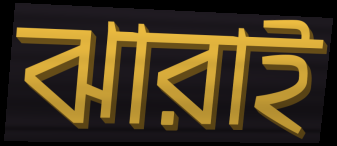
ঝারাই